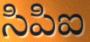
సిపిఐ